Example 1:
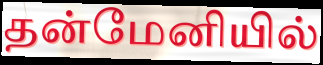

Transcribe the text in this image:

தன்மேனியில்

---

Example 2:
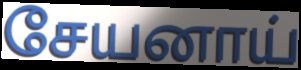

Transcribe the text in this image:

சேயனாய்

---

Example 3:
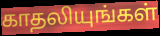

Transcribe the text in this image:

காதலியுங்கள்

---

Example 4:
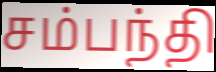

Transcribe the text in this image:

சம்பந்தி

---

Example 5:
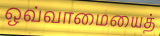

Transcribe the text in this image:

ஒவ்வாமையைத்